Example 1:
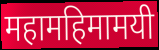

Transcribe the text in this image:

महामहिमामयी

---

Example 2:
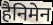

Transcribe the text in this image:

हैनिमेन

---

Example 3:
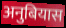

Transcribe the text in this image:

अनुबियास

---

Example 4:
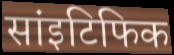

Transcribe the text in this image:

सांइटिफिक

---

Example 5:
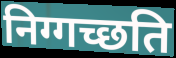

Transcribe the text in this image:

निग्गच्छति